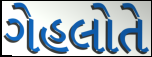
ગેહલોતે